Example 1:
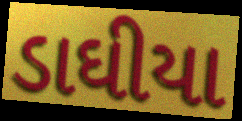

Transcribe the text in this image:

ડાઘીયા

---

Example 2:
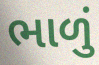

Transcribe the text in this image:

ભાળું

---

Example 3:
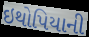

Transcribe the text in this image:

ઇથોપિયાની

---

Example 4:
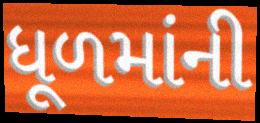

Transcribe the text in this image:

ધૂળમાંની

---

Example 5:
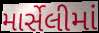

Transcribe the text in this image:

માર્સેલીમાં